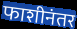
फाशीनंतर